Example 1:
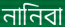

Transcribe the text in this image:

নানিবা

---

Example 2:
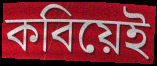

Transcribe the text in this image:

কবিয়েই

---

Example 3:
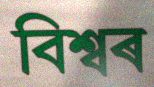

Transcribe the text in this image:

বিশ্বৰ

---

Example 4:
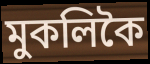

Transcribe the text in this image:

মুকলিকৈ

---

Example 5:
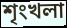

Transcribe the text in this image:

শৃংখলা